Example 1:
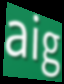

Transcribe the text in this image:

aig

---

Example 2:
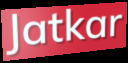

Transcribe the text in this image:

Jatkar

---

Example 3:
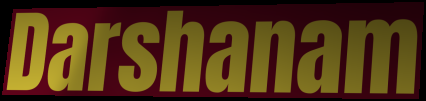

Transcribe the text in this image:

Darshanam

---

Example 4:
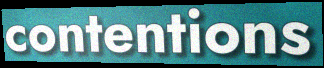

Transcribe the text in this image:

contentions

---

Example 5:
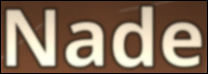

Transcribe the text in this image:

Nade